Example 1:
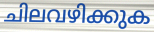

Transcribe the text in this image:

ചിലവഴിക്കുക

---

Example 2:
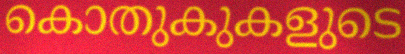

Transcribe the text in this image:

കൊതുകുകളുടെ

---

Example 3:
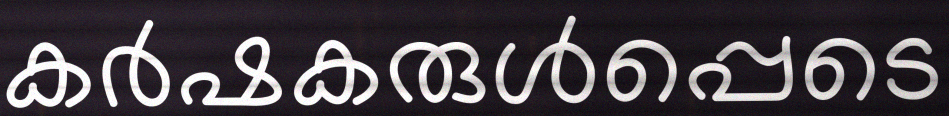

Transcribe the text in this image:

കർഷകരുൾപ്പെടെ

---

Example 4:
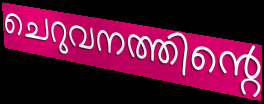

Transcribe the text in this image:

ചെറുവനത്തിന്റെ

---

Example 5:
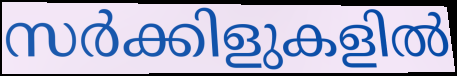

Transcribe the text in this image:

സർക്കിളുകളിൽ